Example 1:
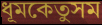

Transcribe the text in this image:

ধূমকেতুসম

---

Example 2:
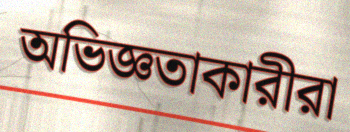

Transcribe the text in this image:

অভিজ্ঞতাকারীরা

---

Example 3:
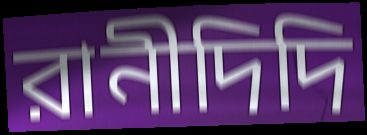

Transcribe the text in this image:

রানীদিদি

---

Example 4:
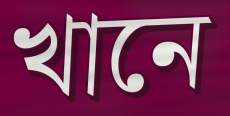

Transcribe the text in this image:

খানে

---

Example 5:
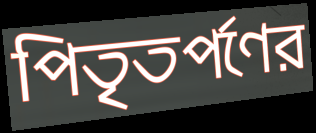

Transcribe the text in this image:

পিতৃতর্পণের